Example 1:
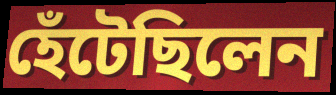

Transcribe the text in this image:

হেঁটেছিলেন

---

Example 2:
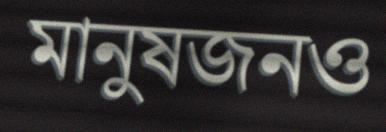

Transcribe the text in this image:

মানুষজনও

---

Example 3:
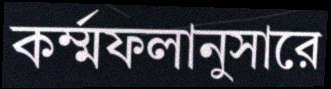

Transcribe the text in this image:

কর্ম্মফলানুসারে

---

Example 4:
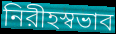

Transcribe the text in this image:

নিরীহস্বভাব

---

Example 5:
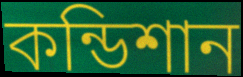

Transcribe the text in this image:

কন্ডিশান